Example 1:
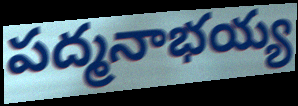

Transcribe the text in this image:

పద్మనాభయ్య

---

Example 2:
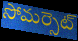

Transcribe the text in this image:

సోమర్సెట్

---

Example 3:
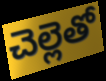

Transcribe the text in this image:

చెల్లెతో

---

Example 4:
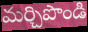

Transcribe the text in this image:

మర్చిపొండి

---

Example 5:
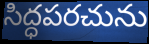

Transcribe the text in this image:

సిద్ధపరచును